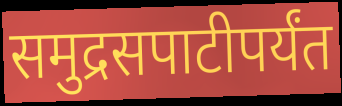
समुद्रसपाटीपर्यंत